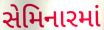
સેમિનારમાં